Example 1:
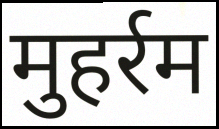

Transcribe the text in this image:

मुहर्रम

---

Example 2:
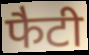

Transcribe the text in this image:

फैटी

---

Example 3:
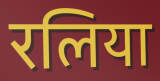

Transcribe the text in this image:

रलिया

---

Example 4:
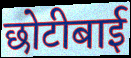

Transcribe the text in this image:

छोटीबाई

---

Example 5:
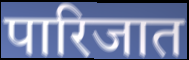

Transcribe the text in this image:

पारिजात